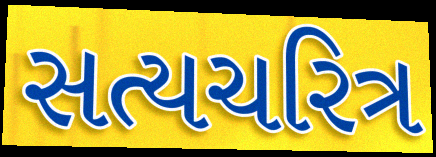
સત્યચરિત્ર